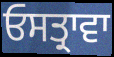
ਓਸਤ੍ਰਾਵਾ